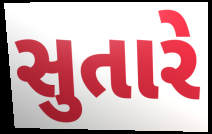
સુતારે